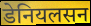
डेनियलसन